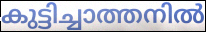
കുട്ടിച്ചാത്തനിൽ